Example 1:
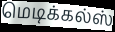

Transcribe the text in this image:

மெடிக்கல்ஸ்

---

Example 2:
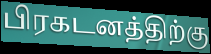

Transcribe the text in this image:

பிரகடனத்திற்கு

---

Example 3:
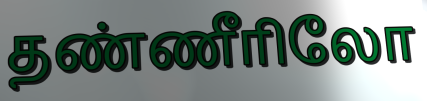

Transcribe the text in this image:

தண்ணீரிலோ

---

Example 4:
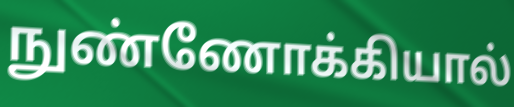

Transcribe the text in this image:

நுண்ணோக்கியால்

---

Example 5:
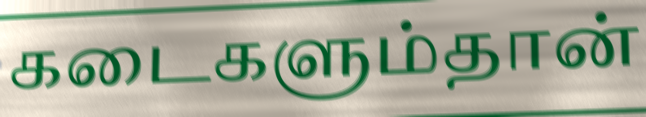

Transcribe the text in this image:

கடைகளும்தான்